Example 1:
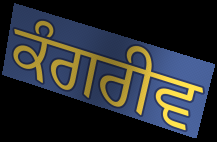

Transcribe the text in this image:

ਕੰਗਰੀਵ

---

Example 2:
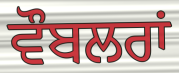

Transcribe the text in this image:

ਵੌਬਲਰਾਂ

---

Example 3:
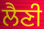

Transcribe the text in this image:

ਲੈਣੀ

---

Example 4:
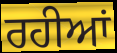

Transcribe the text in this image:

ਰਹੀਆਂ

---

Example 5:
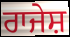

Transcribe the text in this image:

ਰਾਜੇਸ਼